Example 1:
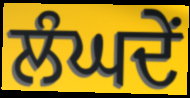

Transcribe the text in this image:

ਲੰਘਦੇਂ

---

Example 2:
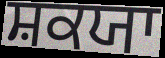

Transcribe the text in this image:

ਸ਼ਕਯਾ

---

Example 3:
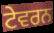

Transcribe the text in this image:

ਟੇਵਰਨ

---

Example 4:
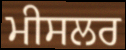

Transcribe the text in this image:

ਮੀਸਲਰ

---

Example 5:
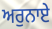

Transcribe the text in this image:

ਅਰੁਨਾਏ